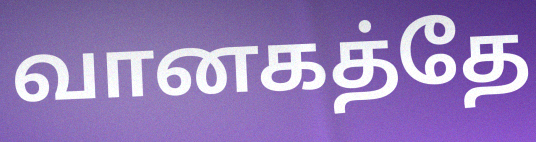
வானகத்தே